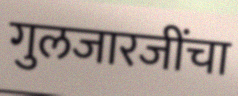
गुलजारजींचा